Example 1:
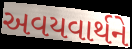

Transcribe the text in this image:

અવયવાર્થને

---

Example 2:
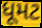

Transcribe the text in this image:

ધૂમટ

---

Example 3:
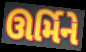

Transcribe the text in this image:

ઊર્મિને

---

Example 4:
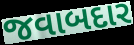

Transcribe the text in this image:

જવાબદાર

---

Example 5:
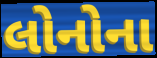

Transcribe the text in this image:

લોનોના